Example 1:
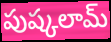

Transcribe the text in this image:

పుష్కలామ్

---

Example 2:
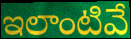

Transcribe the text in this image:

ఇలాంటివే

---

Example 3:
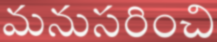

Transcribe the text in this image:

మనుసరించి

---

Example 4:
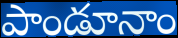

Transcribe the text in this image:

పాండూనాం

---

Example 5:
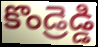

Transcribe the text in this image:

కొండ్రెడ్డి